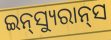
ଇନ୍‌ସ୍ୟୁରାନ୍‌ସ